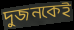
দুজনকেই